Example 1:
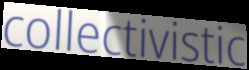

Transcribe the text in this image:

collectivistic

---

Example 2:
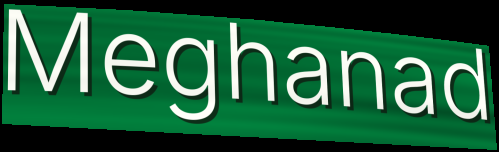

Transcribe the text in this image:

Meghanad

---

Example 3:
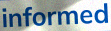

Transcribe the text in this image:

informed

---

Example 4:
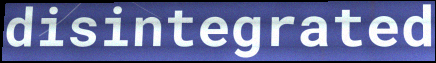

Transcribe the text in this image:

disintegrated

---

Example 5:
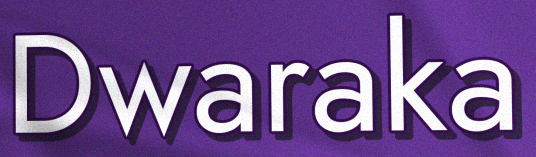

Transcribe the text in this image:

Dwaraka